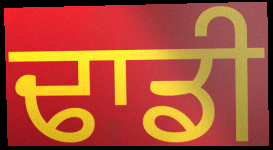
ਢਾਡੀ